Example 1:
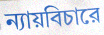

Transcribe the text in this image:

ন্যায়বিচারে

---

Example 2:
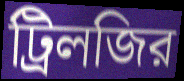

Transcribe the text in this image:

ট্রিলজির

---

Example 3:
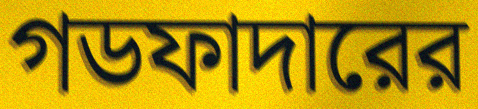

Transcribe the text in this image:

গডফাদারের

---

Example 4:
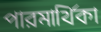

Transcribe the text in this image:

পারমার্থিকা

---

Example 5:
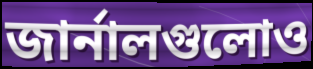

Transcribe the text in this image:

জার্নালগুলোও